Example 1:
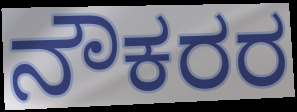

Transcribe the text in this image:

ನೌಕರರ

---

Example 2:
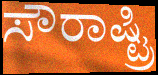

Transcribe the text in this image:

ಸೌರಾಷ್ಟ್ರಿ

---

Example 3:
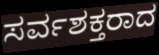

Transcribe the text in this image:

ಸರ್ವಶಕ್ತರಾದ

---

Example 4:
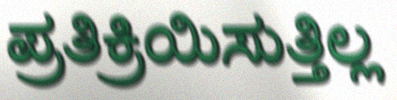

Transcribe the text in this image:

ಪ್ರತಿಕ್ರಿಯಿಸುತ್ತಿಲ್ಲ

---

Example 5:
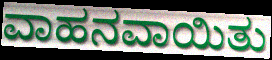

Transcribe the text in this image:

ವಾಹನವಾಯಿತು